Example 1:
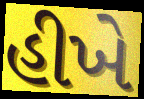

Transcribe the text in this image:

હીખે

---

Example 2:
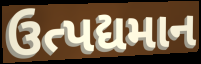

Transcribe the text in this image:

ઉત્પદ્યમાન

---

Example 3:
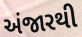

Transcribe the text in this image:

અંજારથી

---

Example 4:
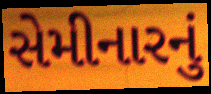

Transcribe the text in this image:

સેમીનારનું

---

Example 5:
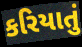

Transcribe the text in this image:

કરિયાતું